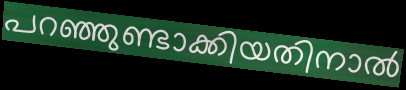
പറഞ്ഞുണ്ടാക്കിയതിനാൽ